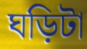
ঘড়িটা